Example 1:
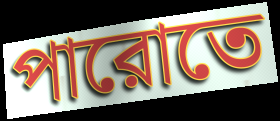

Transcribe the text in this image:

পারোতে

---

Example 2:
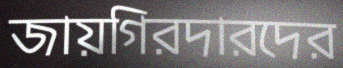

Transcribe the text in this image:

জায়গিরদারদের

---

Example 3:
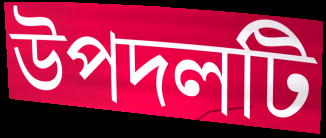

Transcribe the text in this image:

উপদলটি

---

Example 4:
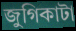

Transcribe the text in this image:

জুগিকাটা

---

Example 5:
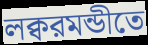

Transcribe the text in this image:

লক্বরমন্ডীতে